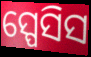
ସ୍ପେସିସ